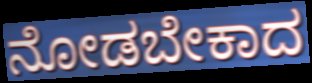
ನೋಡಬೇಕಾದ